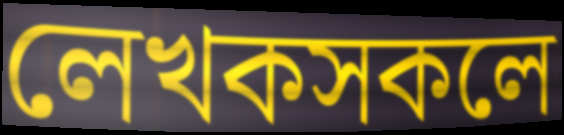
লেখকসকলে